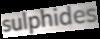
sulphides